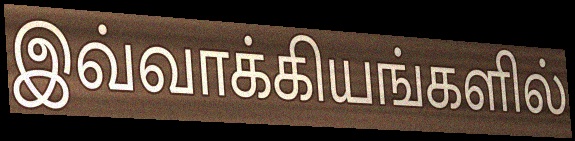
இவ்வாக்கியங்களில்